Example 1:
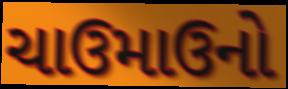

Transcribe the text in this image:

ચાઉમાઉનો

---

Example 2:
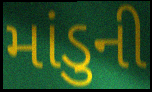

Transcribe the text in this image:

માંડુની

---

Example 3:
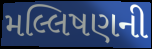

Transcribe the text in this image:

મલ્લિષણની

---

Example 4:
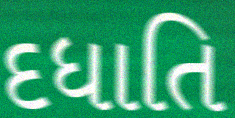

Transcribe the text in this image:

દધાતિ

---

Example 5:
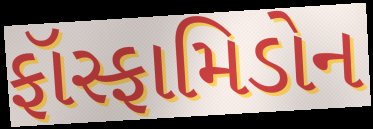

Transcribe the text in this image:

ફૉસ્ફામિડોન